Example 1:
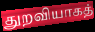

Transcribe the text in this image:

துறவியாகத்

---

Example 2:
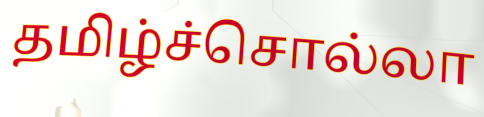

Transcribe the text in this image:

தமிழ்ச்சொல்லா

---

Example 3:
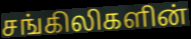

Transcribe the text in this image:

சங்கிலிகளின்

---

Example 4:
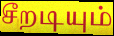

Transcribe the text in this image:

சீறடியும்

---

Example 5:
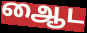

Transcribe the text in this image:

ஆைட